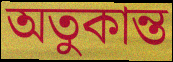
অতুকান্ত